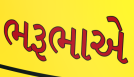
ભરૂભાએ